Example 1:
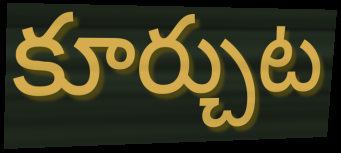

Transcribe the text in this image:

కూర్చుట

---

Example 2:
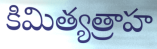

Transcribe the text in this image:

కిమిత్యత్రాహ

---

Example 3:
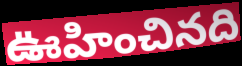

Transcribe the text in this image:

ఊహించినది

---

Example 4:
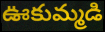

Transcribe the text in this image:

ఊకుమ్మడి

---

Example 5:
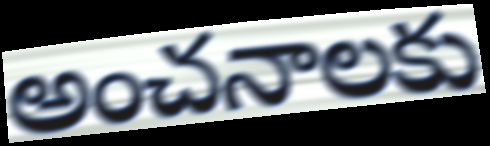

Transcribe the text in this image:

అంచనాలకు